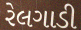
રેલગાડી